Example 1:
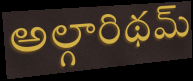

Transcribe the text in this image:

అల్గారిథమ్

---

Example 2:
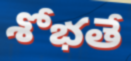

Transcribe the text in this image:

శోభతే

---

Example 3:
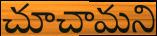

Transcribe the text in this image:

చూచామని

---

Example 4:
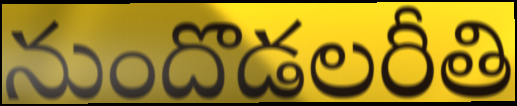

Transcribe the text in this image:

నుందొడలరీతి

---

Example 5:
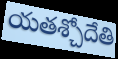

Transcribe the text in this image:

యతశ్చోదేతి